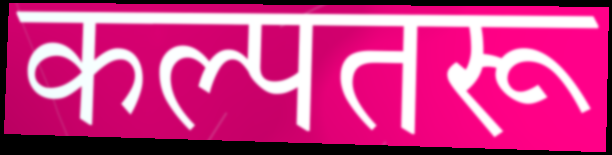
कल्पतरू